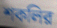
শকলির